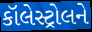
કૉલેસ્ટ્રોલને